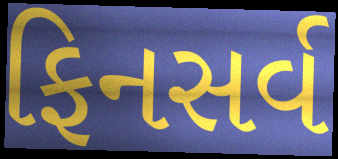
ફિનસર્વ